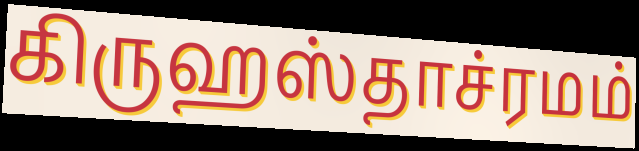
கிருஹஸ்தாச்ரமம்